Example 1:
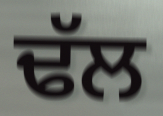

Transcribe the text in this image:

ਢੱਲ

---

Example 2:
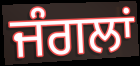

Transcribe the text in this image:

ਜੰਗਲਾਂ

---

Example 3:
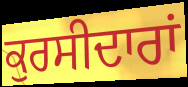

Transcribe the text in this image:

ਕੁਰਸੀਦਾਰਾਂ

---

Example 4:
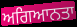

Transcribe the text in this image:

ਅਗਿਆਨਤਾ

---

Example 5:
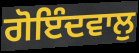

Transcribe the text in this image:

ਗੋਇੰਦਵਾਲੁ